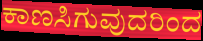
ಕಾಣಸಿಗುವುದರಿಂದ